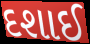
દશાઈ